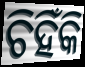
ଚିହିଁକି